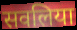
सवलिया